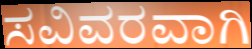
ಸವಿವರವಾಗಿ